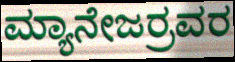
ಮ್ಯಾನೇಜರ್ರವರ